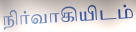
நிர்வாகியிடம்